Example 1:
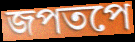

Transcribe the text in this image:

জপতপে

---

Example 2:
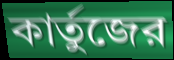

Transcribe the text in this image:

কার্তুজের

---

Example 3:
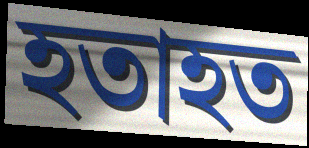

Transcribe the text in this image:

হতাহত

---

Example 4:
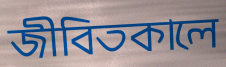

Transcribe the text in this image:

জীবিতকালে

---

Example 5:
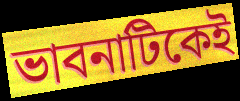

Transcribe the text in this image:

ভাবনাটিকেই